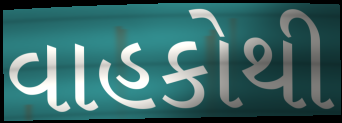
વાહકોથી